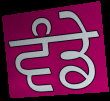
ਵੰਡੇ